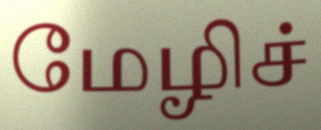
மேழிச்